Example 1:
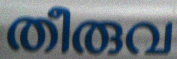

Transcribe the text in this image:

തീരുവ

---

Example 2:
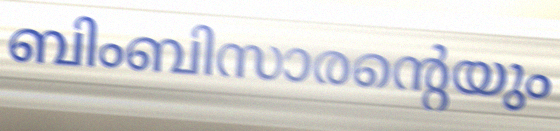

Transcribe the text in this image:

ബിംബിസാരന്റെയും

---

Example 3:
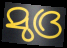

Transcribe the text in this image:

മുദ്ര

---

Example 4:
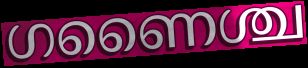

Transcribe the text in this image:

ഗണൈശ്ച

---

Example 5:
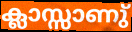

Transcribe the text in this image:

ക്ലാസ്സാണു്